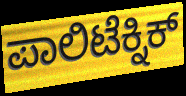
ಪಾಲಿಟೆಕ್ನಿಕ್